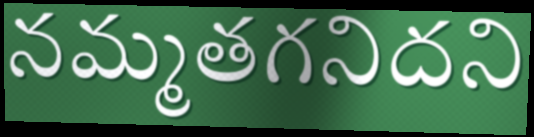
నమ్మతగనిదని